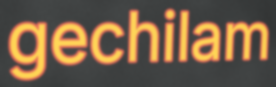
gechilam